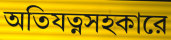
অতিযত্নসহকারে